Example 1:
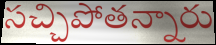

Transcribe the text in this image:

సచ్చిపోతన్నారు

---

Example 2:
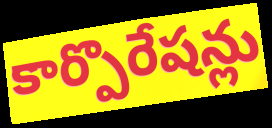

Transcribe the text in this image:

కార్పొరేషన్లు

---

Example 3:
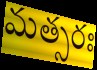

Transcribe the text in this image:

మత్సరః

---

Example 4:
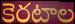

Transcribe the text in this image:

కెరటాల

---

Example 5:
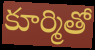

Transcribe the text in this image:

కూర్మితో